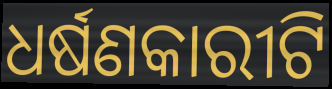
ଧର୍ଷଣକାରୀଟି